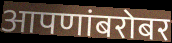
आपणांबरोबर